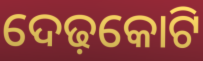
ଦେଢ଼କୋଟି